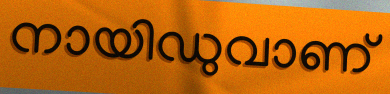
നായിഡുവാണ്